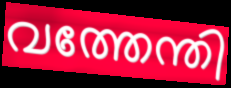
വത്തേന്തി